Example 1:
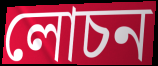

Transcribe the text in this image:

লোচন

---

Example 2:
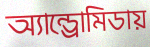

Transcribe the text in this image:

অ্যান্ড্রোমিডায়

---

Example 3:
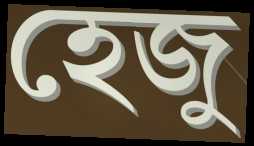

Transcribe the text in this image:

হেজু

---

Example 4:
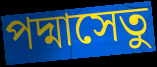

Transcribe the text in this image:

পদ্মাসেতু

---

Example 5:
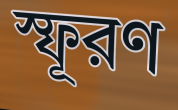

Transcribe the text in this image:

স্ফূরণ